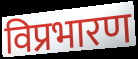
विप्रभारण